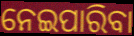
ନେଇପାରିବା